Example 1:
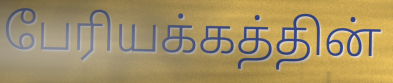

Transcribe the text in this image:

பேரியக்கத்தின்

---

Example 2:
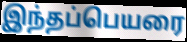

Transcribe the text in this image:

இந்தப்பெயரை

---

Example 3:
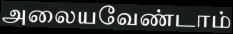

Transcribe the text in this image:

அலையவேண்டாம்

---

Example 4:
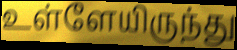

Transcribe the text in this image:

உள்ளேயிருந்து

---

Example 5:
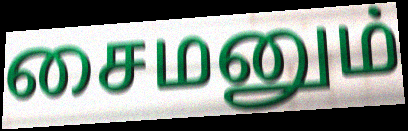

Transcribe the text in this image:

சைமனும்